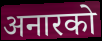
अनारको